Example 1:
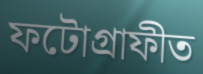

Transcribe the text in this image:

ফটোগ্ৰাফীত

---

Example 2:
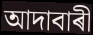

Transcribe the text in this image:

আদাবাৰী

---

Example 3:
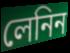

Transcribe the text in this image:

লেনিন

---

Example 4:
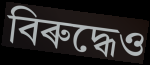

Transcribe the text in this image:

বিৰুদ্ধেও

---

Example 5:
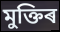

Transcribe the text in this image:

মুক্তিৰ